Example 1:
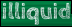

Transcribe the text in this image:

illiquid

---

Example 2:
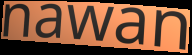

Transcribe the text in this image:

nawan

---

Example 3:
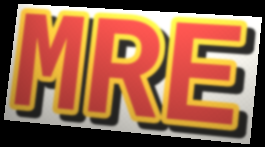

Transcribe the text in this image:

MRE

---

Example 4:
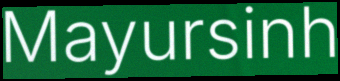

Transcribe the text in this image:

Mayursinh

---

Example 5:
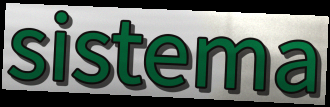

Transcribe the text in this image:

sistema